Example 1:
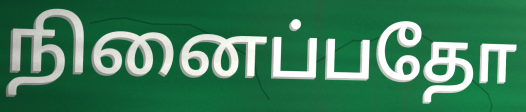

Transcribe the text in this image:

நினைப்பதோ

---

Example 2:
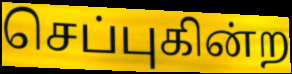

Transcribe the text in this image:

செப்புகின்ற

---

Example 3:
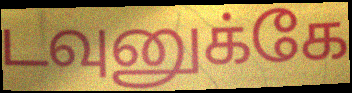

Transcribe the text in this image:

டவுனுக்கே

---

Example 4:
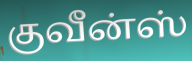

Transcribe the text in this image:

குவீன்ஸ்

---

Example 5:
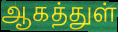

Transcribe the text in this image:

ஆகத்துள்